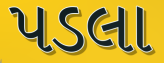
પડલા